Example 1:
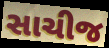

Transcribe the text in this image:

સાચીજ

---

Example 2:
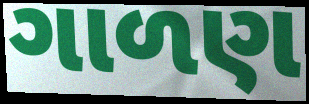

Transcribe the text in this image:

ગાળણ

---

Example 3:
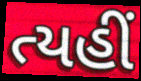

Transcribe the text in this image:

ત્યહીં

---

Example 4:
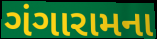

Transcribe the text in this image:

ગંગારામના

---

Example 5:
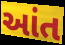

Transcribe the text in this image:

આંત